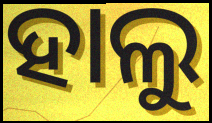
ହାଲୁ